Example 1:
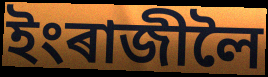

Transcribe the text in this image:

ইংৰাজীলৈ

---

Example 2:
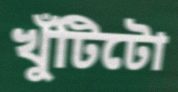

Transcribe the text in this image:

খুঁটিটো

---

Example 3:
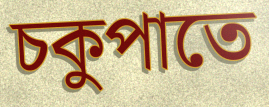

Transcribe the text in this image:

চকুপাতে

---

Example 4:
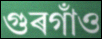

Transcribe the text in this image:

গুৰগাঁও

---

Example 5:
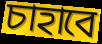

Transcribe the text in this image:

চাহাবে